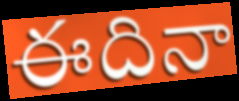
ఈదినా